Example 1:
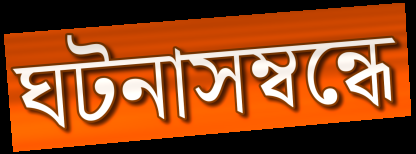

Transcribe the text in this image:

ঘটনাসম্বন্ধে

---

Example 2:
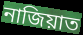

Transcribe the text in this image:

নাজিয়াত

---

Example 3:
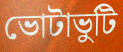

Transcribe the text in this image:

ভোটাভুটি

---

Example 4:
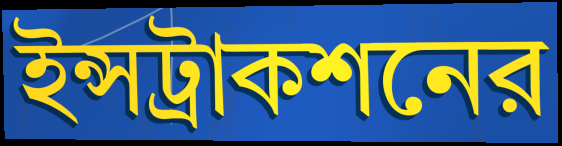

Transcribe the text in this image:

ইন্সট্রাকশনের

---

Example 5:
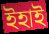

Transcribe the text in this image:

ইহাই